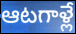
ఆటగాళ్లే